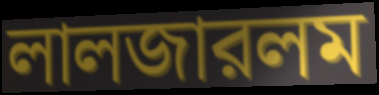
লালজারলম